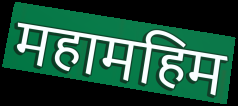
महामहिम